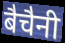
बैचैनी